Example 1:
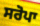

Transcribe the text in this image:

ਸਰੋਪਾ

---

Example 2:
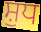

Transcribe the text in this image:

ਸ਼ੁਧ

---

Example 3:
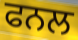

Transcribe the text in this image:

ਫਨਲ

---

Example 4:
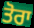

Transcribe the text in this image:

ਤੋਰਾ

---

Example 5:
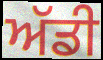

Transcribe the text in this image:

ਅੱਡੀ